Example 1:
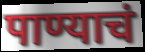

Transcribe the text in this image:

पाण्याचं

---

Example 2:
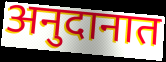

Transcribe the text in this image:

अनुदानात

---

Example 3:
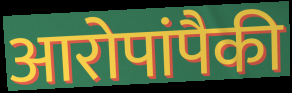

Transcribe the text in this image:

आरोपांपैकी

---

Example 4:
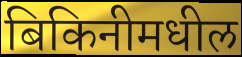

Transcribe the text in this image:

बिकिनीमधील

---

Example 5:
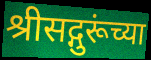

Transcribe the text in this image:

श्रीसद्गुरूंच्या